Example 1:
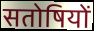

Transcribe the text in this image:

सतोषियों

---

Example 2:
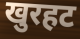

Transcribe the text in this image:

खुरहट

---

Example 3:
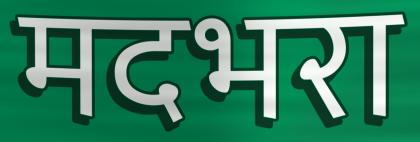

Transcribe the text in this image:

मदभरा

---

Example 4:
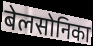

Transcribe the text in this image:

बेलसोनिका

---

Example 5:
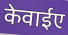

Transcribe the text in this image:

केवाईए